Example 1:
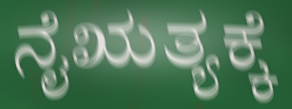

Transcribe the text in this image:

ನೈಋತ್ಯಕ್ಕೆ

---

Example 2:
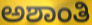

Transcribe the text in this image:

ಅಶಾಂತಿ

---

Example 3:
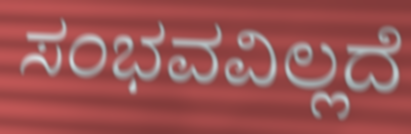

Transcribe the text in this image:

ಸಂಭವವಿಲ್ಲದೆ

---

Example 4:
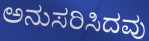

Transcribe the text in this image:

ಅನುಸರಿಸಿದವು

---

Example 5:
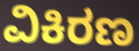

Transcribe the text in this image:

ವಿಕಿರಣ